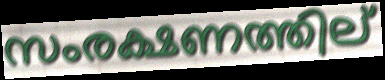
സംരക്ഷണത്തില്